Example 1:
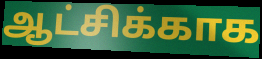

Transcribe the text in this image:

ஆட்சிக்காக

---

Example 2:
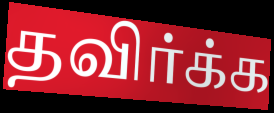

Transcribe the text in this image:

தவிர்க்க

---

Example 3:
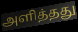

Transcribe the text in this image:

அளித்தது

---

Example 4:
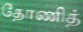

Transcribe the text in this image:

தோணித்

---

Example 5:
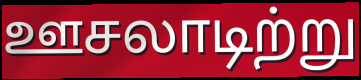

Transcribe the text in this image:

ஊசலாடிற்று